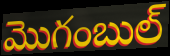
మొగంబుల్